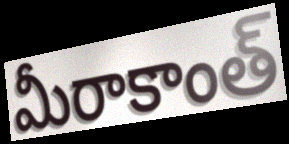
మీరాకాంత్